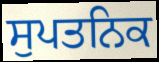
ਸੁਪਤਨਿਕ